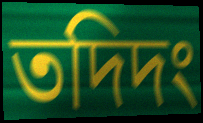
তদিদং